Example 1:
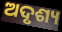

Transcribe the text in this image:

ଅଦୃଶ୍ୟ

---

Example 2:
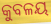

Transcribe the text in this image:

କୁବଳୟ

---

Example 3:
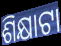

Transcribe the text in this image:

ଶିକ୍ଷାଟା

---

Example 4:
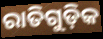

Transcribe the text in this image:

ରାତିଗୁଡ଼ିକ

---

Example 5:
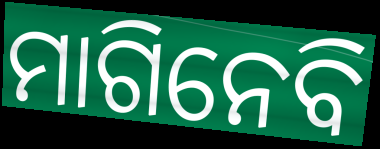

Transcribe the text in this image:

ମାଗିନେବି